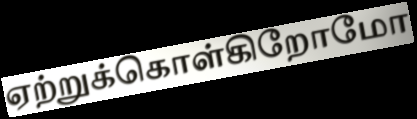
ஏற்றுக்கொள்கிறோமோ